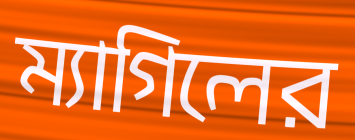
ম্যাগিলের